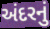
અંદરનું